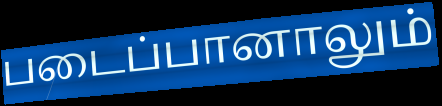
படைப்பானாலும்